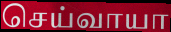
செய்வாயா